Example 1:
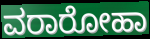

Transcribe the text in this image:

ವರಾರೋಹಾ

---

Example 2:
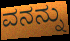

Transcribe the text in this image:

ವನನ್ನು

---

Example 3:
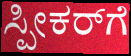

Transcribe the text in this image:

ಸ್ಪೀಕರ್‌ಗೆ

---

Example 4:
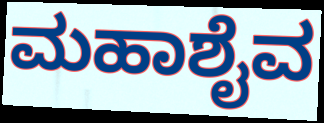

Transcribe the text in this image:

ಮಹಾಶೈವ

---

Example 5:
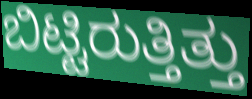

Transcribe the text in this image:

ಬಿಟ್ಟಿರುತ್ತಿತ್ತು